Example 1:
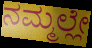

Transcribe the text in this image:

ನಮ್ಮಲ್ಲೇ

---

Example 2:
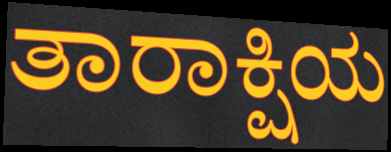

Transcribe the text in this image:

ತಾರಾಕ್ಷಿಯ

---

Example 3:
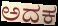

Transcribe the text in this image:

ಅದಕ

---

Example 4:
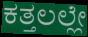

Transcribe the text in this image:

ಕತ್ತಲಲ್ಲೇ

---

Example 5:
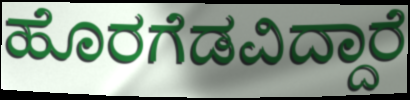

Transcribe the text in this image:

ಹೊರಗೆಡವಿದ್ದಾರೆ